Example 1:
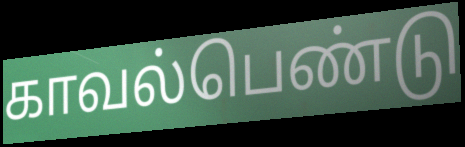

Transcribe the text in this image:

காவல்பெண்டு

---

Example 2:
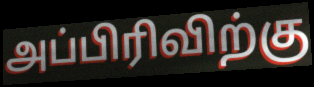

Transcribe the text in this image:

அப்பிரிவிற்கு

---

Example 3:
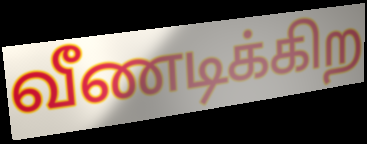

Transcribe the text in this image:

வீணடிக்கிற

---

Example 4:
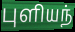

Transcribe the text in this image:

புளியந்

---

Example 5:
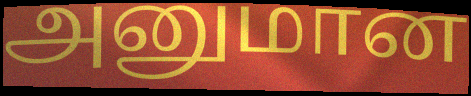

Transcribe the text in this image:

அனுமான